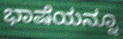
ಭಾಷೆಯನ್ನೂ